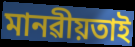
মানৱীয়তাই